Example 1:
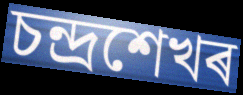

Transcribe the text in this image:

চন্দ্ৰশেখৰ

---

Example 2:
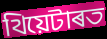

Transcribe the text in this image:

থিয়েটাৰত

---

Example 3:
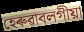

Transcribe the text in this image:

হেৰুৱাবলগীয়া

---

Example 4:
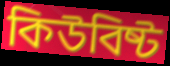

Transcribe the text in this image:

কিউবিষ্ট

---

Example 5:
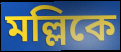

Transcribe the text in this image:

মল্লিকে